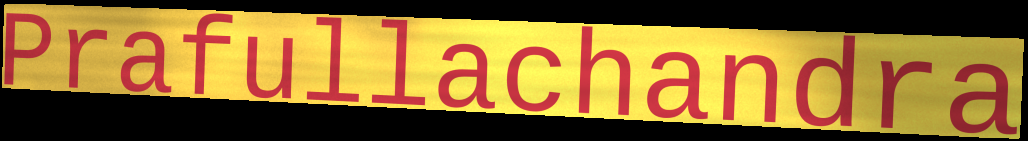
Prafullachandra